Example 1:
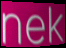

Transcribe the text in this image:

nek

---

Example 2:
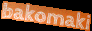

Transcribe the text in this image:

bakomaki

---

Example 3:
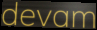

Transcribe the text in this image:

devam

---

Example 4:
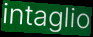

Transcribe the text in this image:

intaglio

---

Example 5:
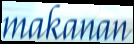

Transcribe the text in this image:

makanan